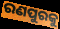
ରଣପୁରକୁ